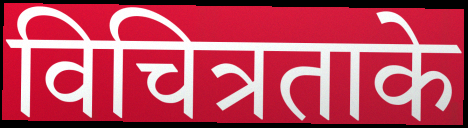
विचित्रताके